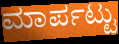
ಮಾರ್ಪಟ್ಟು